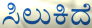
ಸಿಲುಕಿದೆ